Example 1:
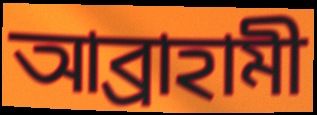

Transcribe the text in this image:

আব্ৰাহামী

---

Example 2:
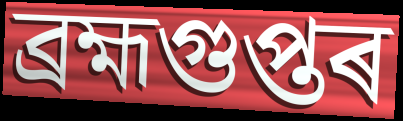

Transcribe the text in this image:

ব্ৰহ্মগুপ্তৰ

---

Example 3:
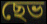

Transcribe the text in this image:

ছেভ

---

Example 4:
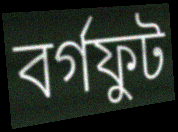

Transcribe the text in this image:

বৰ্গফুট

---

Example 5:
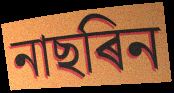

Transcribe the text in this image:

নাছৰিন